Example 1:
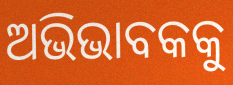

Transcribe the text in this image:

ଅଭିଭାବକକୁ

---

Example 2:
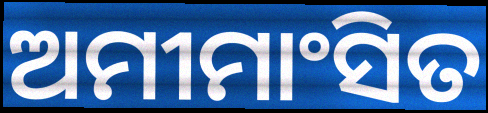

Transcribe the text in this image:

ଅମୀମାଂସିତ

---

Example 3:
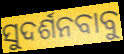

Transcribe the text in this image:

ସୁଦର୍ଶନବାବୁ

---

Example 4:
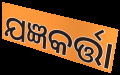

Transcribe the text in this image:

ଯଜ୍ଞକର୍ତ୍ତା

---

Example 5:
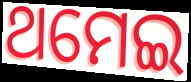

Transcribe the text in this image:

ଥମେଇ